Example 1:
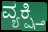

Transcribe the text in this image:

ವ್ಯಕ್ಷ್ತಿ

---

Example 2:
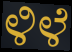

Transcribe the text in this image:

ಳಿಳೆ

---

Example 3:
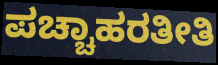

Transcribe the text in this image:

ಪಚ್ಚಾಹರತೀತಿ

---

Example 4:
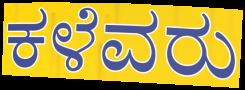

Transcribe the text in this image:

ಕಳೆವರು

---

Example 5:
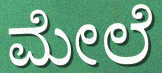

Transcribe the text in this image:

ಮೇಲೆ